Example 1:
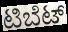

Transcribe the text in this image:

ಟಿಬೆಟ್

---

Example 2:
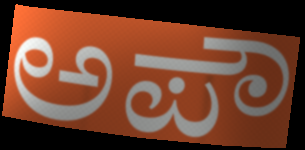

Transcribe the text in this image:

ಅಪೌ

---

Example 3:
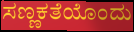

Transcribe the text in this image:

ಸಣ್ಣಕತೆಯೊಂದು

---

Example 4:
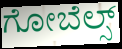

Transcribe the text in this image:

ಗೋಬೆಲ್ಸ್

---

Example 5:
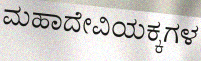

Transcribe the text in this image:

ಮಹಾದೇವಿಯಕ್ಕಗಳ